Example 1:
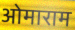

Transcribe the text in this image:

ओमाराम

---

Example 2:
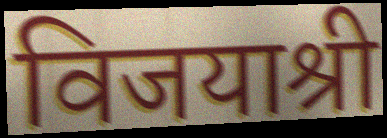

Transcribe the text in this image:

विजयाश्री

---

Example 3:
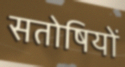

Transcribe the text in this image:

सतोषियों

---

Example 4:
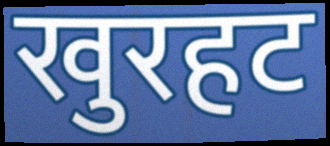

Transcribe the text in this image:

खुरहट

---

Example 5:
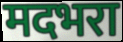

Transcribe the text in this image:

मदभरा